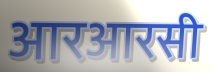
आरआरसी